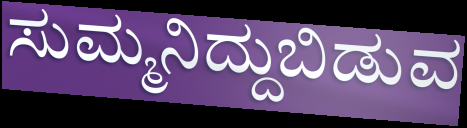
ಸುಮ್ಮನಿದ್ದುಬಿಡುವ